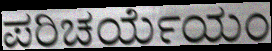
ಪರಿಚರ್ಯೆಯಂ